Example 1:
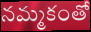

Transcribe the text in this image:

నమ్మకంతో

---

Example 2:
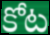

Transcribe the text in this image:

కోట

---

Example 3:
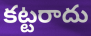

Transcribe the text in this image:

కట్టరాదు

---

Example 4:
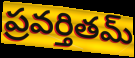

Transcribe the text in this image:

ప్రవర్తితమ్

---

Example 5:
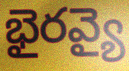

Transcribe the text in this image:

భైరవ్యై